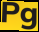
Pg